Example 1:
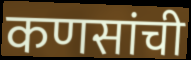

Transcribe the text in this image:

कणसांची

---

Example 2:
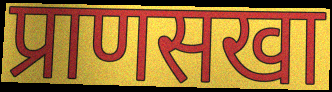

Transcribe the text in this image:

प्राणसखा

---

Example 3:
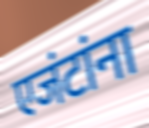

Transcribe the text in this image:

एजंटांना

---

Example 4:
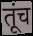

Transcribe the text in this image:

तूंच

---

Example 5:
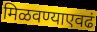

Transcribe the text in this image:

मिळवण्याएवढं